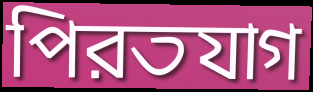
পিরতযাগ